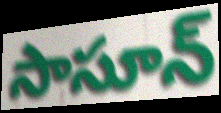
సాసూన్